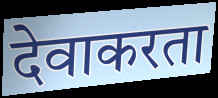
देवाकरता